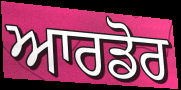
ਆਰਡੋਰ